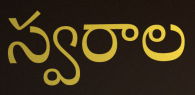
స్వరాల